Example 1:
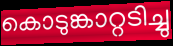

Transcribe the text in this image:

കൊടുങ്കാറ്റടിച്ചു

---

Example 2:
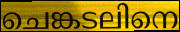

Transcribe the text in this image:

ചെങ്കടലിനെ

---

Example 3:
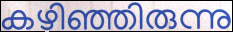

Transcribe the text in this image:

കഴിഞ്ഞിരുന്നു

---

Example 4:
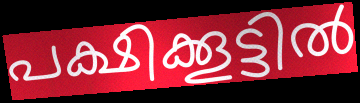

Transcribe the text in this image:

പക്ഷിക്കൂട്ടിൽ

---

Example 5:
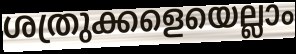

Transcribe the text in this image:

ശത്രുക്കളെയെല്ലാം